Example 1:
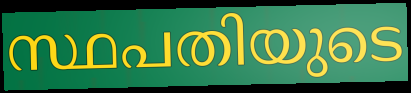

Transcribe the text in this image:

സ്ഥപതിയുടെ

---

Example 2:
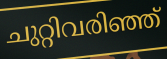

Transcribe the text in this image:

ചുറ്റിവരിഞ്ഞ്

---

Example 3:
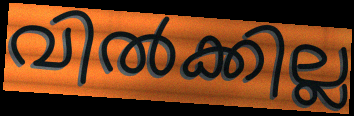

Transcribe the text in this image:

വിൽക്കില്ല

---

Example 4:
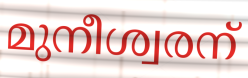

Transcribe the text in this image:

മുനീശ്വരന്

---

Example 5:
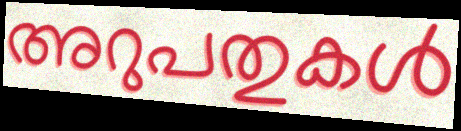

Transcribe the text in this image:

അറുപതുകൾ